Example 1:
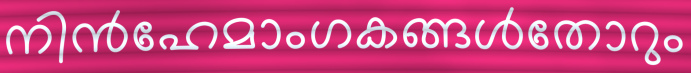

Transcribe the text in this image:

നിൻഹേമാംഗകങ്ങൾതോറും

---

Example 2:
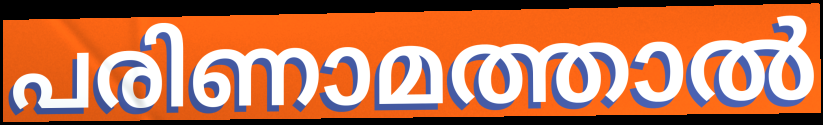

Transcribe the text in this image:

പരിണാമത്താൽ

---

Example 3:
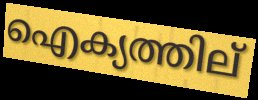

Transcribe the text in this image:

ഐക്യത്തില്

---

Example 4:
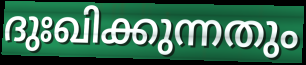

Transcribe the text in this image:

ദുഃഖിക്കുന്നതും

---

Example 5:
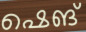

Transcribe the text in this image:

ഷെങ്